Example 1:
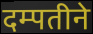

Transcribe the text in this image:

दम्पतीने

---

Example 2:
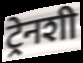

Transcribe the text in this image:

ट्रेनशी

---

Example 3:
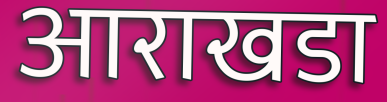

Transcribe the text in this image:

आराखडा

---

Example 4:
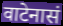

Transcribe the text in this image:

वाटेनासं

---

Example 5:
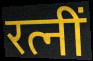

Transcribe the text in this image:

रत्नीं